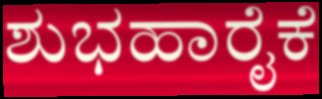
ಶುಭಹಾರೈಕೆ